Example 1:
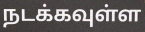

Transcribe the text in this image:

நடக்கவுள்ள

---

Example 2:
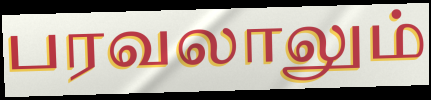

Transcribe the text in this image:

பரவலாலும்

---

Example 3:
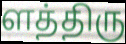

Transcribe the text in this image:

ளத்திரு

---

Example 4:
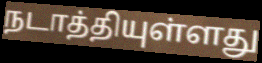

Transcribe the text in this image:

நடாத்தியுள்ளது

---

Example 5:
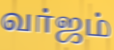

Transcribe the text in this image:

வர்ஜம்